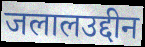
जलालउद्दीन